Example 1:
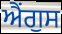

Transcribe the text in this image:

ਐਂਗੁਸ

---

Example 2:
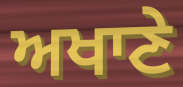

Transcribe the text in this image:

ਅਖਾਣੇ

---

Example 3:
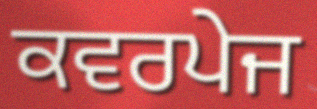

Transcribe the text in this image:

ਕਵਰਪੇਜ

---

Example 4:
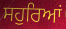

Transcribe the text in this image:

ਸਹੁਰਿਆਂ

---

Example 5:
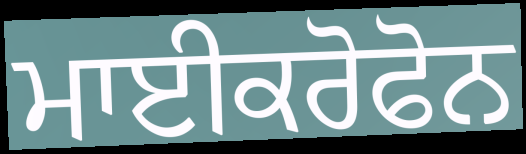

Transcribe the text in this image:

ਮਾਈਕਰੋਫੋਨ